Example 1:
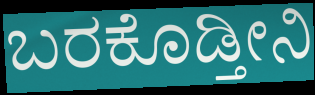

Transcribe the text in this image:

ಬರಕೊಡ್ತೀನಿ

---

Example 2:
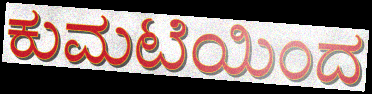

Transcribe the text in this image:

ಕುಮಟೆಯಿಂದ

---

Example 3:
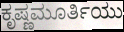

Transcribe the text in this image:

ಕೃಷ್ಣಮೂರ್ತಿಯು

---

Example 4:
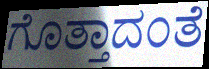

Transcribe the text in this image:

ಗೊತ್ತಾದಂತೆ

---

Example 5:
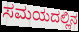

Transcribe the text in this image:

ಸಮಯದಲ್ಲಿನ